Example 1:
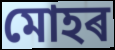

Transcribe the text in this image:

মোহৰ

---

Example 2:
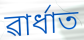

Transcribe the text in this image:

ৱাৰ্ধাত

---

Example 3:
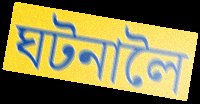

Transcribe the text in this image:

ঘটনালৈ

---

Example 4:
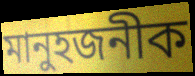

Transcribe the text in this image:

মানুহজনীক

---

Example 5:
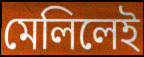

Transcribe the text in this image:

মেলিলেই